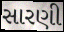
સારણી